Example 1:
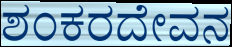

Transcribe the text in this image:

ಶಂಕರದೇವನ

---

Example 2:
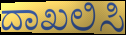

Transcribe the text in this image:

ದಾಖಲಿಸಿ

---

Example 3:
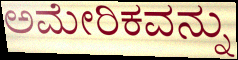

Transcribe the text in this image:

ಅಮೇರಿಕವನ್ನು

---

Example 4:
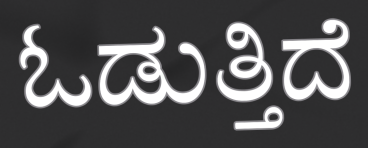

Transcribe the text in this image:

ಓಡುತ್ತಿದೆ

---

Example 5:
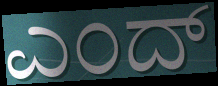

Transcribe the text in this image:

ಎಂದ್